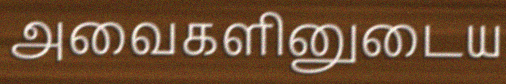
அவைகளினுடைய